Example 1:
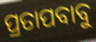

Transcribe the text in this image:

ପ୍ରତାପବାବୁ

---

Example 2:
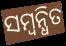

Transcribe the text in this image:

ସମ୍ବନ୍ଧିତ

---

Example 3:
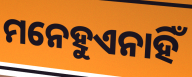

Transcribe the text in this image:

ମନେହୁଏନାହିଁ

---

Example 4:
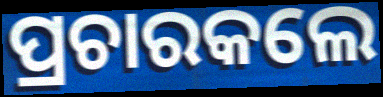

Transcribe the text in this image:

ପ୍ରଚାରକଲେ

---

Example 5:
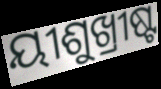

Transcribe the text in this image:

ୟୀଶୁଖ୍ରୀଷ୍ଟ